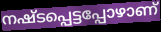
നഷ്ടപ്പെട്ടപ്പോഴാണ്